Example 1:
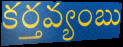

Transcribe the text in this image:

కర్తవ్యంబు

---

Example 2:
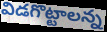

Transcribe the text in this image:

విడగొట్టాలన్న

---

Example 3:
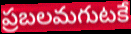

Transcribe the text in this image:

ప్రబలమగుటకే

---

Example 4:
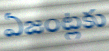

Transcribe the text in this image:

ఏజంట్లకు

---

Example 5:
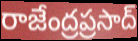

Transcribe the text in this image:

రాజేంద్రప్రసాద్